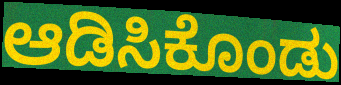
ಆಡಿಸಿಕೊಂಡು